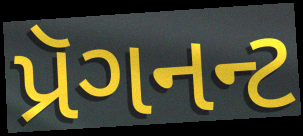
પ્રૅગનન્ટ